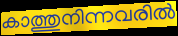
കാത്തുനിന്നവരിൽ